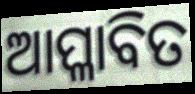
ଆପ୍ଳାବିତ